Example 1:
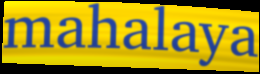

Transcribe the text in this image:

mahalaya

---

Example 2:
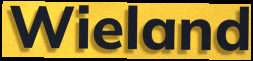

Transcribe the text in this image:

Wieland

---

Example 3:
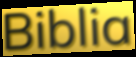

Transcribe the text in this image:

Biblia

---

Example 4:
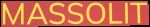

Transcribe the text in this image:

MASSOLIT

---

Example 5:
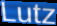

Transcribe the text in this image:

Lutz